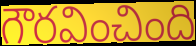
గౌరవించింది